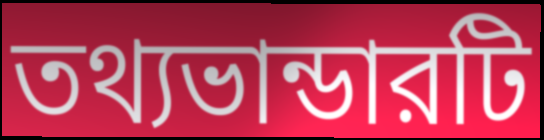
তথ্যভান্ডারটি